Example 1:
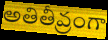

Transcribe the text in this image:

అతితీవ్రంగా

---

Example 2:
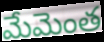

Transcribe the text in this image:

మేమెంత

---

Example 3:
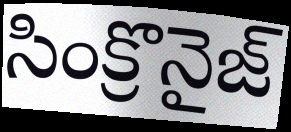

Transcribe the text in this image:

సింక్రొనైజ్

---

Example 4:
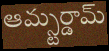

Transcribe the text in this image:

ఆమ్స్టర్డామ్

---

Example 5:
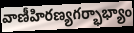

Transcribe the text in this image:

వాణీహిరణ్యగర్భాభ్యాం